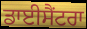
ਡਾਈਸੈਂਟਰਾ